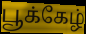
பூக்கேழ்